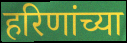
हरिणांच्या